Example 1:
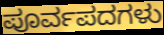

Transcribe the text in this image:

ಪೂರ್ವಪದಗಳು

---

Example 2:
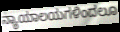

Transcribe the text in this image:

ನ್ಯಾಯಾಲಯಗಳಿಂದಲೂ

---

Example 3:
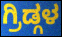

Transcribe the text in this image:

ಗ್ರಿಡ್ಗಳ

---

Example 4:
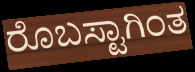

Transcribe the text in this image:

ರೊಬಸ್ಟಾಗಿಂತ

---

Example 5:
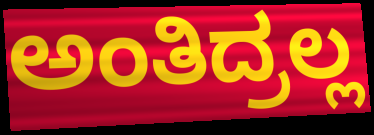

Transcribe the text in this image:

ಅಂತಿದ್ರಲ್ಲ